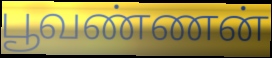
பூவண்ணன்